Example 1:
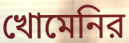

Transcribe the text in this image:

খোমেনির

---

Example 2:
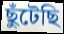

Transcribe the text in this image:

ছুঁটেছি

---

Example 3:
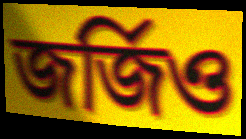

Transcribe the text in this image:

জর্জিও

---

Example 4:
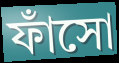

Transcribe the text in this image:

ফাঁসো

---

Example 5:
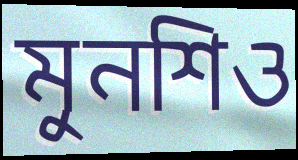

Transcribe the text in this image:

মুনশিও